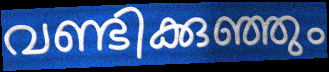
വണ്ടിക്കുഞ്ഞും